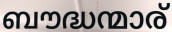
ബൗദ്ധന്മാര്